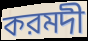
করমদী